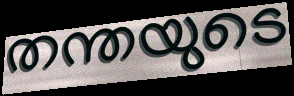
തന്തയുടെ